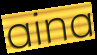
aina